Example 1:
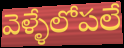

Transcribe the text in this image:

వెళ్ళేలోపలే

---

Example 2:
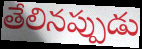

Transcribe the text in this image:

తేలినప్పుడు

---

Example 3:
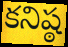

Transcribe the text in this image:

కనిష్ఠ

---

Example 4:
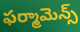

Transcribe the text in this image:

ఫర్మామెన్స్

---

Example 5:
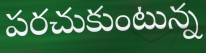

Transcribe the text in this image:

పరచుకుంటున్న